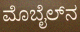
ಮೊಬೈಲ್‌ನ